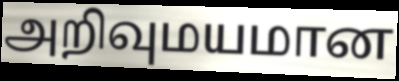
அறிவுமயமான